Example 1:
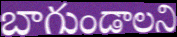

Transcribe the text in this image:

బాగుండాలని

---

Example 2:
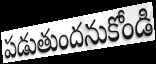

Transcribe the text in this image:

పడుతుందనుకోండి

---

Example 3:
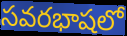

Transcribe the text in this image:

సవరభాషలో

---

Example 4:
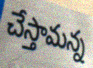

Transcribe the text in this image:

చేస్తామన్న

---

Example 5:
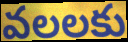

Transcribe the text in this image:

వలలకు